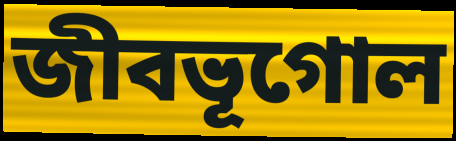
জীবভূগোল